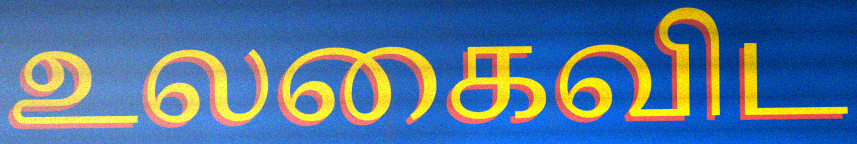
உலகைவிட